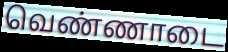
வெண்ணாடை